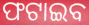
ଫଟାଇବ